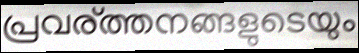
പ്രവര്ത്തനങ്ങളുടെയും